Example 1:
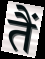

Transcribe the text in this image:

तैं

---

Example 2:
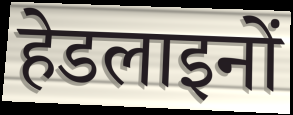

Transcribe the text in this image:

हेडलाइनों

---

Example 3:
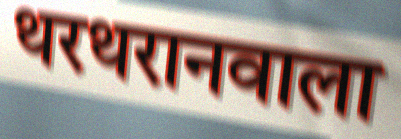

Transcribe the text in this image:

थरथरानवाला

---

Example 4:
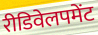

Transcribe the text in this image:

रीडिवेलपमेंट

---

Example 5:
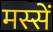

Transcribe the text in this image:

मस्सें